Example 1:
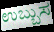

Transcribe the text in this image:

ಉಬ್ಬುಸ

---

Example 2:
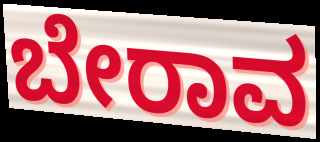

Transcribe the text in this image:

ಬೇರಾವ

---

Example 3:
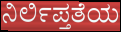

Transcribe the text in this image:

ನಿರ್ಲಿಪ್ತತೆಯ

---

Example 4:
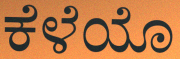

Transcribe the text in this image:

ಕೆಳೆಯೊ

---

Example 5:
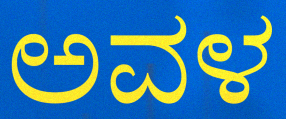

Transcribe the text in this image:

ಅವಳ